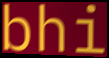
bhi